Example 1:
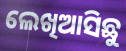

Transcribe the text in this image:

ଲେଖିଆସିଛୁ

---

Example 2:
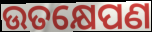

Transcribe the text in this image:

ଉତକ୍ଷେପଣ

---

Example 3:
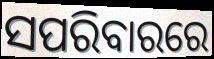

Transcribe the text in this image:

ସପରିବାରରେ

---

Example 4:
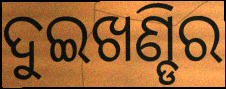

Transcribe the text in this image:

ଦୁଇଖଣ୍ଡିର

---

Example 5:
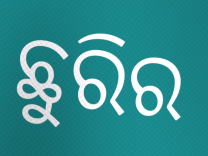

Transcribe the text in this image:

ଛୁରିର